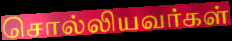
சொல்லியவர்கள்